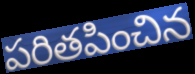
పరితపించిన